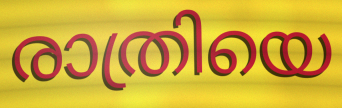
രാത്രിയെ